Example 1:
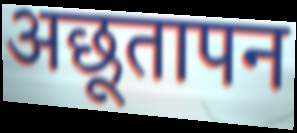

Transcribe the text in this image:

अछूतापन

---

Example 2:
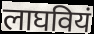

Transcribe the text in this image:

लाघवियं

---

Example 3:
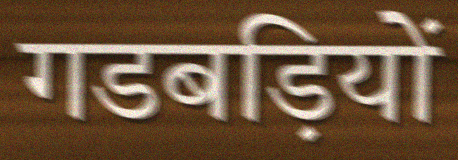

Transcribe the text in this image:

गडबड़ियों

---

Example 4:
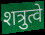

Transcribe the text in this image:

शत्रुत्वे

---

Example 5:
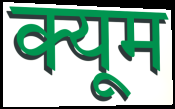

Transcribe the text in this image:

क्यूम